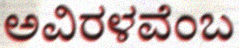
ಅವಿರಳವೆಂಬ